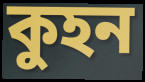
কুহন